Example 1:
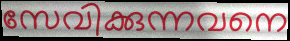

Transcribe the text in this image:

സേവിക്കുന്നവനെ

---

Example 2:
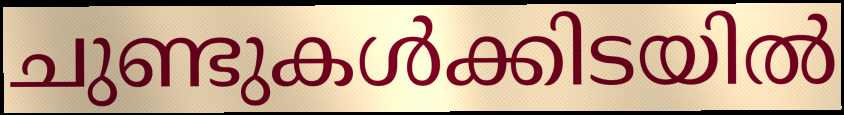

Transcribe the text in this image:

ചുണ്ടുകൾക്കിടയിൽ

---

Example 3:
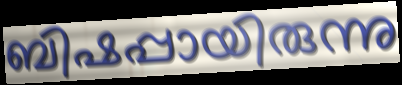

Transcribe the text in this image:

ബിഷപ്പായിരുന്നു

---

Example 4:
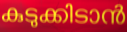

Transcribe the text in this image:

കുടുക്കിടാൻ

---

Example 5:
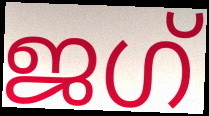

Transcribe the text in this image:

ജഗ്